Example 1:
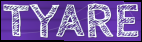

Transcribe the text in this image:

TYARE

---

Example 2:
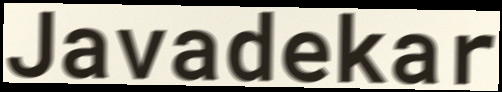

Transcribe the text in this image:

Javadekar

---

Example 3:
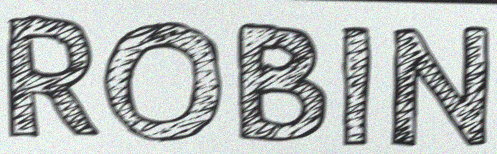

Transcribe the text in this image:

ROBIN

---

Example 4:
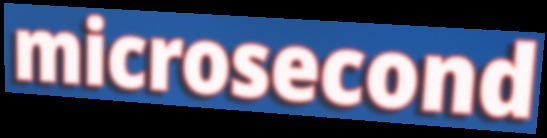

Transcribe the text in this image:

microsecond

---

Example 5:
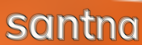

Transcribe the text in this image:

santna